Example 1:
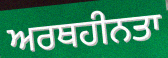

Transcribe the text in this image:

ਅਰਥਹੀਨਤਾ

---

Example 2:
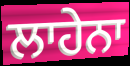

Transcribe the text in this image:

ਲਾਹੇਨਾ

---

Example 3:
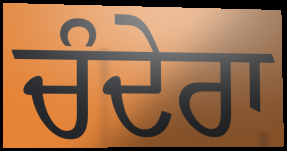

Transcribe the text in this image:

ਚੰਦੇਰਾ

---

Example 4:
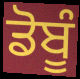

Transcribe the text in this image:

ਡੋਬੂੰ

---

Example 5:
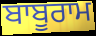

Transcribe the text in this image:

ਬਾਬੂਰਾਮ